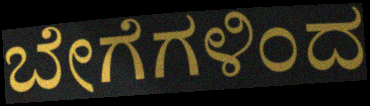
ಬೇಗೆಗಳಿಂದ